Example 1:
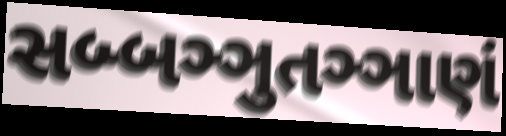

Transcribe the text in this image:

સબ્બઞ્ઞુતઞ્ઞાણં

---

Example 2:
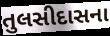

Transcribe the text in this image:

તુલસીદાસના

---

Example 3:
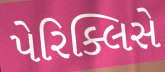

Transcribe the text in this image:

પેરિક્લિસે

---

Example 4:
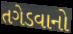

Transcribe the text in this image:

તગેડવાનો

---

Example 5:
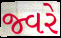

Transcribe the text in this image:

જ્વરે